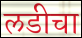
लडीचा